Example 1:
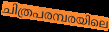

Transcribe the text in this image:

ചിത്രപരമ്പരയിലെ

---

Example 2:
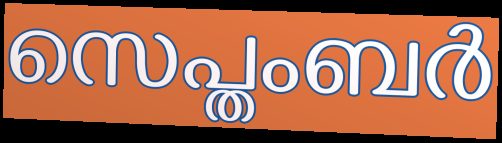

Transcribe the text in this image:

സെപ്തംബർ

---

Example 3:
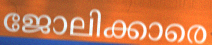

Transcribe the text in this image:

ജോലിക്കാരെ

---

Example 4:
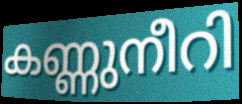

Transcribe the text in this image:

കണ്ണുനീറി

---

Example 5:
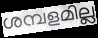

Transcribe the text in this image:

ശമ്പളമില്ല